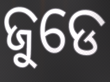
ଜୁଡେ